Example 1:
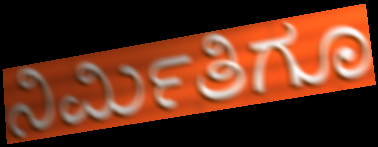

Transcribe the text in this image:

ನಿರ್ಮಿತಿಗೂ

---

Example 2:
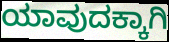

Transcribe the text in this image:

ಯಾವುದಕ್ಕಾಗಿ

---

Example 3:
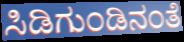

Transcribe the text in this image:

ಸಿಡಿಗುಂಡಿನಂತೆ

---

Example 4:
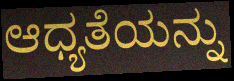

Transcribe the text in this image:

ಆಧ್ಯತೆಯನ್ನು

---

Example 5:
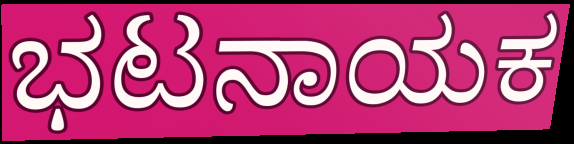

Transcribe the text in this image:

ಭಟನಾಯಕ